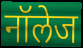
नॉलेज